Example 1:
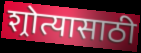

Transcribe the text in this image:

श्रोत्यासाठी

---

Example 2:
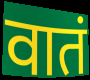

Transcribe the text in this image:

वातं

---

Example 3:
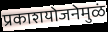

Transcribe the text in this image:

प्रकाशयोजनेमुळं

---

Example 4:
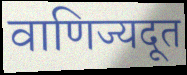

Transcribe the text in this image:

वाणिज्यदूत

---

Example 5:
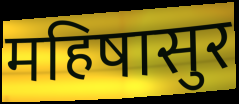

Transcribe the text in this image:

महिषासुर